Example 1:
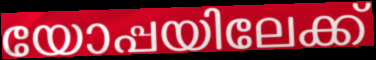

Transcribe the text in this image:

യോപ്പയിലേക്ക്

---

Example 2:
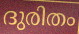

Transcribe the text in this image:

ദുരിതം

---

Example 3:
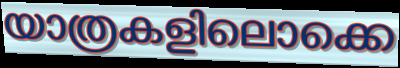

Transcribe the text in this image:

യാത്രകളിലൊക്കെ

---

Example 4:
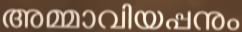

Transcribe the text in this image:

അമ്മാവിയപ്പനും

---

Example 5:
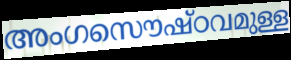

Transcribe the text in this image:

അംഗസൌഷ്ഠവമുള്ള